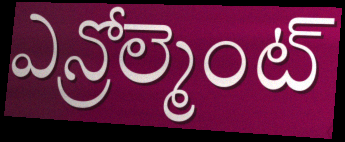
ఎన్రోల్మెంట్